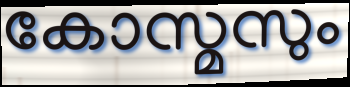
കോസ്മസും